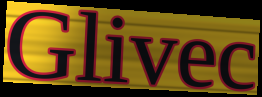
Glivec